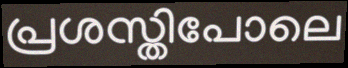
പ്രശസ്തിപോലെ